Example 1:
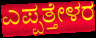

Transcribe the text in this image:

ಎಪ್ಪತ್ತೇಳರ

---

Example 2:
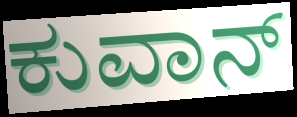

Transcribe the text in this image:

ಕುವಾನ್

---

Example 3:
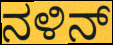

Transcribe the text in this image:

ನಳಿನ್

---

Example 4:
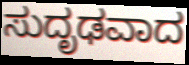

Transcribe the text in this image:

ಸುದೃಢವಾದ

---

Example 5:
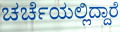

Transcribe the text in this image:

ಚರ್ಚೆಯಲ್ಲಿದ್ದಾರೆ